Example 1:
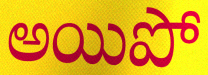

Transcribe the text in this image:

అయిపో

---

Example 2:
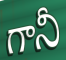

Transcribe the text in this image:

గానీ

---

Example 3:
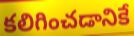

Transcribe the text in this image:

కలిగించడానికే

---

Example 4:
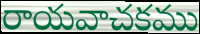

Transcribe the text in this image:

రాయవాచకము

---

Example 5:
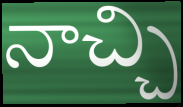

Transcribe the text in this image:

నాచ్చి